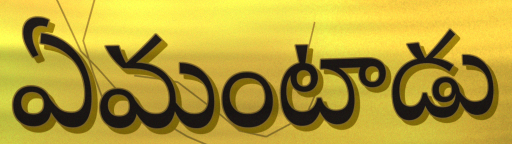
ఏమంటాడు